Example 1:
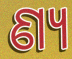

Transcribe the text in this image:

ଣ୍ଯ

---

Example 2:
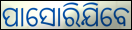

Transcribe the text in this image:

ପାସୋରିଯିବେ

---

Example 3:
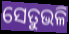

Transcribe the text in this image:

ସେତୁଭଳି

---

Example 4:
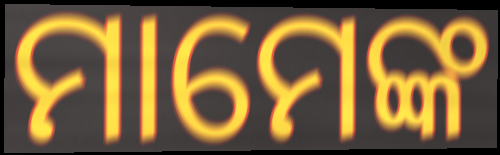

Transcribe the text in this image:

ମାମେଙ୍କ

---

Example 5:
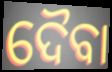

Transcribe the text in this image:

ଦୈବା